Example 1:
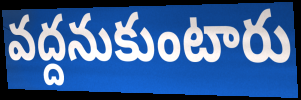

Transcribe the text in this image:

వద్దనుకుంటారు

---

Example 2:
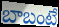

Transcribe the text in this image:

బాబంటే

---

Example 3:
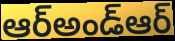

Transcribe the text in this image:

ఆర్అండ్ఆర్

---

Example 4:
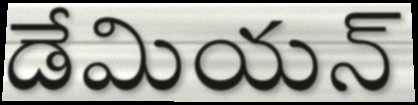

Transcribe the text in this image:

డేమియన్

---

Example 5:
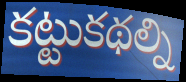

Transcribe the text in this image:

కట్టుకథల్ని